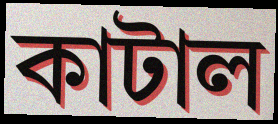
কাটাল